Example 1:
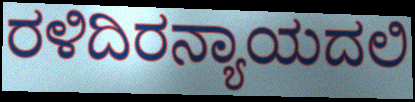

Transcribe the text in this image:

ರಳಿದಿರನ್ಯಾಯದಲಿ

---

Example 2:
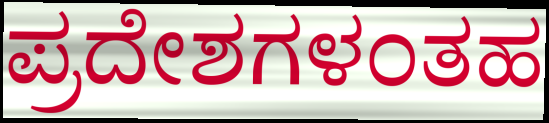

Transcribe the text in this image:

ಪ್ರದೇಶಗಳಂತಹ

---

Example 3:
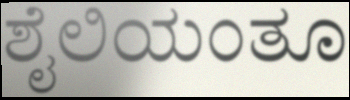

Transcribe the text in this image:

ಶೈಲಿಯಂತೂ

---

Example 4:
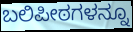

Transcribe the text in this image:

ಬಲಿಪೀಠಗಳನ್ನೂ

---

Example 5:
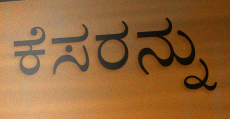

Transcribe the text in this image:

ಕೆಸರನ್ನು